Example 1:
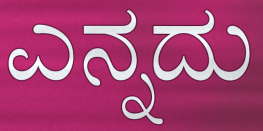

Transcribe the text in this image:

ಎನ್ನದು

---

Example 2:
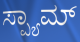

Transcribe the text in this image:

ಸ್ಪ್ಯಾಮ್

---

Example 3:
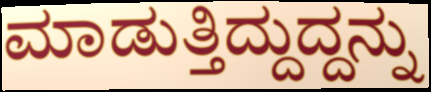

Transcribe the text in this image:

ಮಾಡುತ್ತಿದ್ದುದ್ದನ್ನು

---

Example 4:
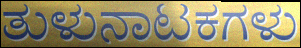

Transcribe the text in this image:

ತುಳುನಾಟಕಗಳು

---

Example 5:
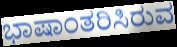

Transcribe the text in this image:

ಭಾಷಾಂತರಿಸಿರುವ